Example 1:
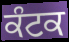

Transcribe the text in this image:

ਕੰਟਕ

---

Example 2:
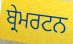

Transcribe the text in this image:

ਬ੍ਰੇਮਰਟਨ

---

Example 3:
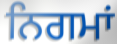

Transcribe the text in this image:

ਨਿਗਮਾਂ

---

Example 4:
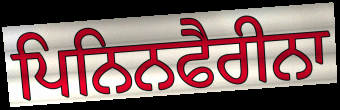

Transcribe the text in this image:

ਪਿਨਿਨਫੈਰੀਨਾ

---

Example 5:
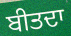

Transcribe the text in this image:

ਬੀਤਦਾ